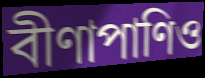
বীণাপাণিও